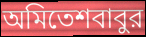
অমিতেশবাবুর